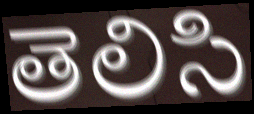
తెలిసి